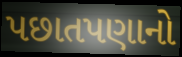
પછાતપણાનો